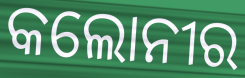
କଲୋନୀର